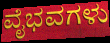
ವೈಭವಗಳು